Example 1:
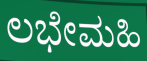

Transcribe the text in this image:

ಲಭೇಮಹಿ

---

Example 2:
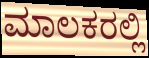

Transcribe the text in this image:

ಮಾಲಕರಲ್ಲಿ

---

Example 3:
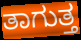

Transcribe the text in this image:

ತಾಗುತ್ತ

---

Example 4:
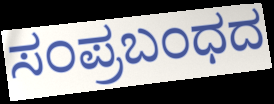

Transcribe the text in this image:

ಸಂಪ್ರಬಂಧದ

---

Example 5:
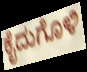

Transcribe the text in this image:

ಕೈದುಗೊಳಿ